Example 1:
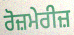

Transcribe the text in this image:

ਰੋਜ਼ਮੇਰੀਜ਼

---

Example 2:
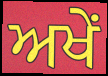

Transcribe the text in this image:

ਅਖੇਂ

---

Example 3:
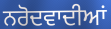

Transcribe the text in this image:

ਨਰੋਦਵਾਦੀਆਂ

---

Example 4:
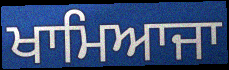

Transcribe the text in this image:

ਖਾਮਿਆਜਾ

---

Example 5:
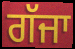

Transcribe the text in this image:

ਗੱਜਾ